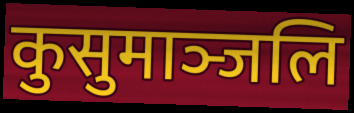
कुसुमाञ्जलि